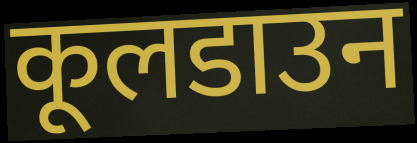
कूलडाउन